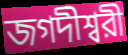
জগদীশ্বরী